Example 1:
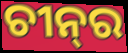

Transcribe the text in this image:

ଚୀନ୍‌ର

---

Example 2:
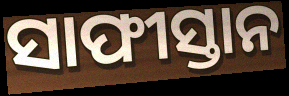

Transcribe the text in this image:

ସାଫୀସ୍ତାନ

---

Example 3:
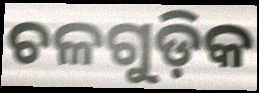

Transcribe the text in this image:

ଚଳଗୁଡ଼ିକ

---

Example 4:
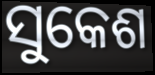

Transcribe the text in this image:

ସୁକେଶ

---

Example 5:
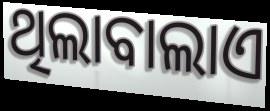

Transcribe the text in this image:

ଥିଲାବାଲାଏ